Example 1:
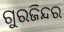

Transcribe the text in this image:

ଗୁରଜିନ୍ଦର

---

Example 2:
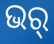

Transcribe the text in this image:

ଭର୍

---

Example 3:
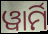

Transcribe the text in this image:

ୱାର୍ମି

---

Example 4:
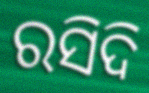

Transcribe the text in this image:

ରସିଦି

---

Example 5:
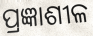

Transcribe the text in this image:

ପ୍ରଜ୍ଞାଶୀଳ